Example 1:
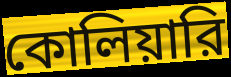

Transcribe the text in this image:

কোলিয়ারি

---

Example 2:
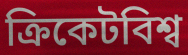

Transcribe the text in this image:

ক্রিকেটবিশ্ব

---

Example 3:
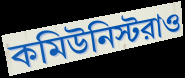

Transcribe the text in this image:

কমিউনিস্টরাও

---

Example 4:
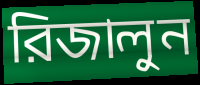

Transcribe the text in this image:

রিজালুন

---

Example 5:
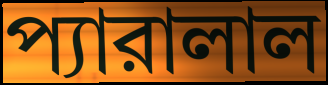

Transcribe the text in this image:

প্যারালাল